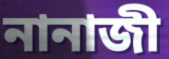
নানাজী